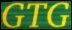
GTG